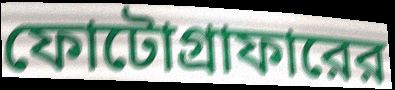
ফোটোগ্রাফারের